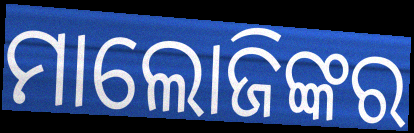
ମାଲୋଜିଙ୍କର